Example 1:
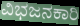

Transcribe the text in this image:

ವಿಭಜನಕಾರಿ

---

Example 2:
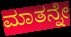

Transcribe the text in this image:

ಮಾತನ್ನೇ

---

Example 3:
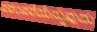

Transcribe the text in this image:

ಪರಂಪರೆಯೆನ್ನುವುದು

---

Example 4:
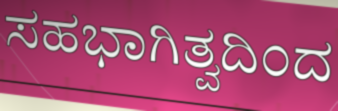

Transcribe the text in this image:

ಸಹಭಾಗಿತ್ವದಿಂದ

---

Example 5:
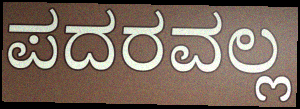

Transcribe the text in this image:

ಪದರವಲ್ಲ